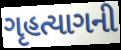
ગૃહત્યાગની